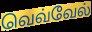
வெவ்வேல்